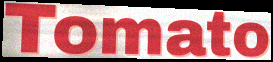
Tomato